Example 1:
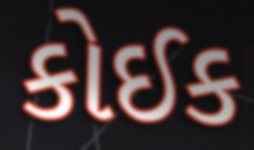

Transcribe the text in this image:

કોઈક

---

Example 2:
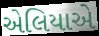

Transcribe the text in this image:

એલિયાએ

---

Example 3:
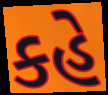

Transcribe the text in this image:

કહે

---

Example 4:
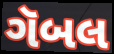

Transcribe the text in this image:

ગૅબલ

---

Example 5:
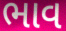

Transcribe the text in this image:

ભાવ